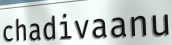
chadivaanu